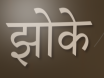
झोके